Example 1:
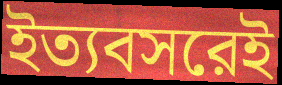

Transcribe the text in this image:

ইত্যবসরেই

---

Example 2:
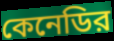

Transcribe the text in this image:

কেনেডির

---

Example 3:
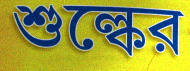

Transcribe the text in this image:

শুল্কের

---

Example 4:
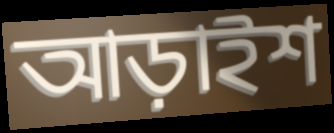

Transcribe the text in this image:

আড়াইশ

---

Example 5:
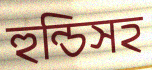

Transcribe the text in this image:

হুন্ডিসহ